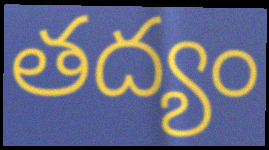
తద్యం